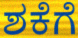
ಶಕೆಗೆ